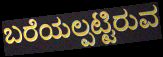
ಬರೆಯಲ್ಪಟ್ಟಿರುವ